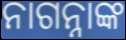
ନାଗନ୍ନାଙ୍କ